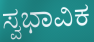
ಸ್ವಭಾವಿಕ